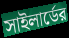
সাইলার্ডের